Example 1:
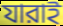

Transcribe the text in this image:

যারাই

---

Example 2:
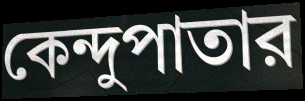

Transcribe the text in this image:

কেন্দুপাতার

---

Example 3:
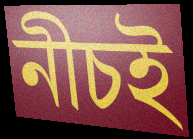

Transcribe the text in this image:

নীচই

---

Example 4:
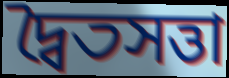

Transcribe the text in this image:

দ্বৈতসত্তা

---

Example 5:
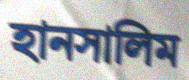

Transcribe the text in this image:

হানসালিম